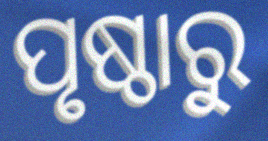
ପୃଷ୍ଠାରୁ